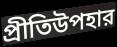
প্রীতিউপহার